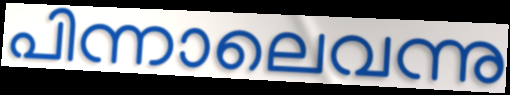
പിന്നാലെവന്നു